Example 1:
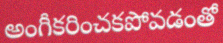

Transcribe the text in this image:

అంగీకరించకపోవడంతో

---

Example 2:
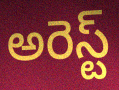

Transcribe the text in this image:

అరెస్ట్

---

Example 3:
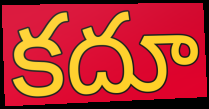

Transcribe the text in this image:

కదూ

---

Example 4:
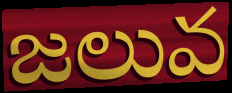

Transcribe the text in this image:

జలువ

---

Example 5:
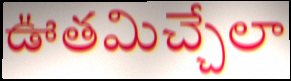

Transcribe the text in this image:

ఊతమిచ్చేలా